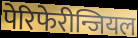
पेरिफेरीन्जियल